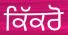
ਕਿੱਕਰੋ